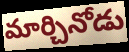
మార్చినోడు